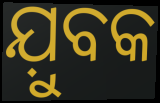
ଯ଼ୁବକ